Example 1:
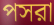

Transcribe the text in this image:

পসরা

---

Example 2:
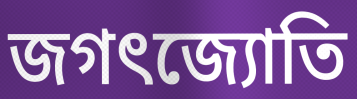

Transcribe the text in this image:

জগৎজ্যোতি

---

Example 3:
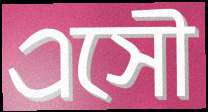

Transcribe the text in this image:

এসৌ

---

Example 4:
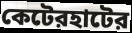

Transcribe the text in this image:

কেটেরহাটের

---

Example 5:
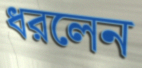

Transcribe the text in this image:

ধরলেন